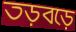
তড়বড়ে